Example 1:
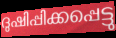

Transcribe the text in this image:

ദുഷിപ്പിക്കപ്പെട്ടു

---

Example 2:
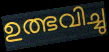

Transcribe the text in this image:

ഉത്ഭവിച്ചു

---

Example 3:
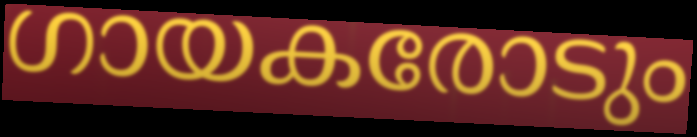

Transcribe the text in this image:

ഗായകരോടും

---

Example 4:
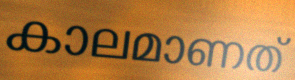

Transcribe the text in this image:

കാലമാണത്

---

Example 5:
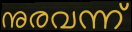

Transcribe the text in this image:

നുരവന്ന്